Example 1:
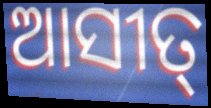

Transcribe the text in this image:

ଆସୀତ୍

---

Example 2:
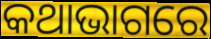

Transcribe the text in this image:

କଥାଭାଗରେ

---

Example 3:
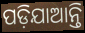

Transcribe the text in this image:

ପଡ଼ିଯାଆନ୍ତି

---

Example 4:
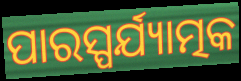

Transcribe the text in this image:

ପାରସ୍ପର୍ଯ୍ୟାତ୍ମକ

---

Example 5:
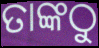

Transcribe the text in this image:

ତାଙ୍କଠୁ